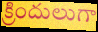
క్రిందులుగా